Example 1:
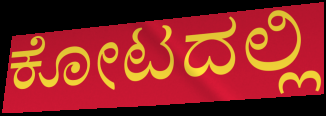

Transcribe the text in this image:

ಕೋಟದಲ್ಲಿ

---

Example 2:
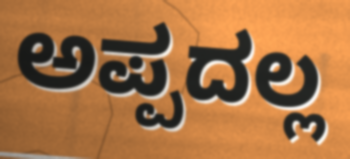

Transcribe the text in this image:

ಅಪ್ಪದಲ್ಲ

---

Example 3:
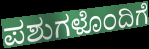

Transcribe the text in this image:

ಪಶುಗಳೊಂದಿಗೆ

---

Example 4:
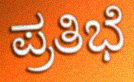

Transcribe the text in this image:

ಪ್ರತಿಭೆ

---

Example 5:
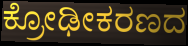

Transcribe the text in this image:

ಕ್ರೋಢೀಕರಣದ